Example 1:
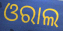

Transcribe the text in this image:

ଓରାଲ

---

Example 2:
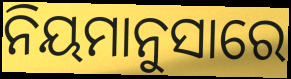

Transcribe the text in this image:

ନିୟମାନୁସାରେ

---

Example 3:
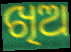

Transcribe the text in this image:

ଖିଅ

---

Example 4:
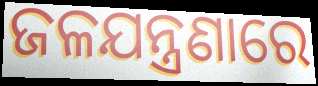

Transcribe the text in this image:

ଜଳଯନ୍ତ୍ରଣାରେ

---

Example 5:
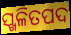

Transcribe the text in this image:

ସ୍ଖଳିତପଦ